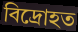
বিদ্ৰোহত